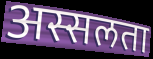
अस्सलता